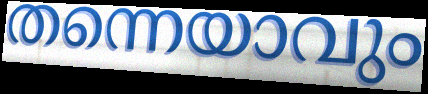
തന്നെയാവും